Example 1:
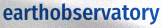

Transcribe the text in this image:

earthobservatory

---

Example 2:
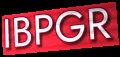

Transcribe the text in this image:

IBPGR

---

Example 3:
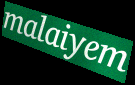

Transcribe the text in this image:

malaiyem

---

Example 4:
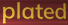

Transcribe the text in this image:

plated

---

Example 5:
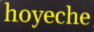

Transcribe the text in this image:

hoyeche